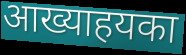
आख्याहयका